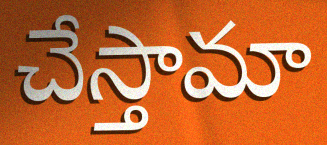
చేస్తామా